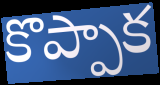
కొప్పాక